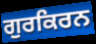
ਗੁਰਕਿਰਨ